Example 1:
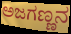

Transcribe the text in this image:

ಅಜಗಣ್ಣನ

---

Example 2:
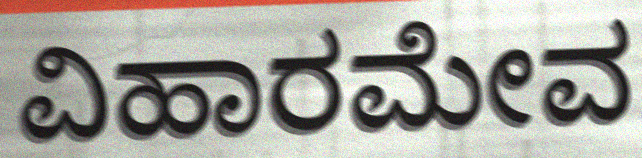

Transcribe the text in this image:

ವಿಹಾರಮೇವ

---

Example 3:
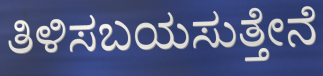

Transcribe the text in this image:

ತಿಳಿಸಬಯಸುತ್ತೇನೆ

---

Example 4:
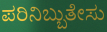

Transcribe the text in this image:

ಪರಿನಿಬ್ಬುತೇಸು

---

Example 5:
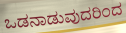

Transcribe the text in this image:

ಒಡನಾಡುವುದರಿಂದ